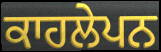
ਕਾਹਲੇਪਨ